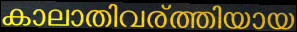
കാലാതിവര്ത്തിയായ